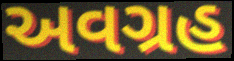
અવગ્રહ